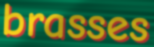
brasses